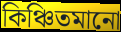
কিঞ্চিতমানো